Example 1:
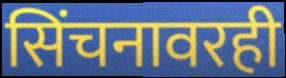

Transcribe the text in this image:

सिंचनावरही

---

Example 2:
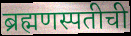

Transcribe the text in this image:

ब्रह्मणस्पतीची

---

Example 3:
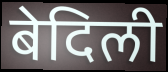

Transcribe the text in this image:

बेदिली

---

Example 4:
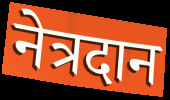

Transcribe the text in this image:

नेत्रदान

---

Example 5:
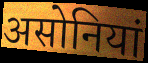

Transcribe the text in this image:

असोनियां